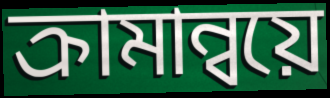
ক্রামান্বয়ে